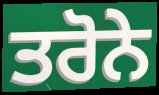
ਤਰੋਨੇ